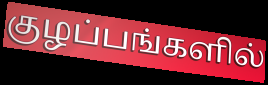
குழப்பங்களில்